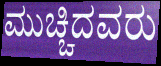
ಮುಚ್ಚಿದವರು